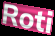
Roti